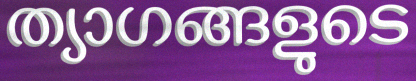
ത്യാഗങ്ങളുടെ